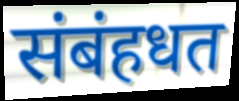
संबंहधत